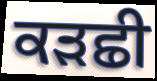
ਕੜਛੀ